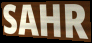
SAHR